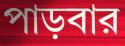
পাড়বার